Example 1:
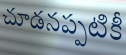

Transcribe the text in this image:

చూడనప్పటికీ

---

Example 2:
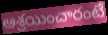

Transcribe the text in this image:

ఆశ్రయించారంటే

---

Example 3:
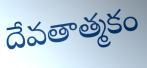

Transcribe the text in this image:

దేవతాత్మకం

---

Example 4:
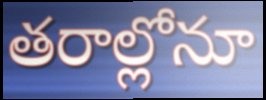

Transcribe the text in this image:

తరాల్లోనూ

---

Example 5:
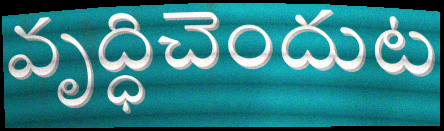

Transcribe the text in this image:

వృద్ధిచెందుట